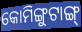
କୋମିଙ୍ଗୁଟାଙ୍ଗ୍